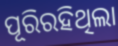
ପୂରିରହିଥିଲା